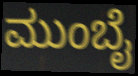
ಮುಂಬೈ